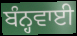
ਬੰਨ੍ਹਵਾਈ